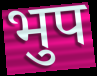
भुप